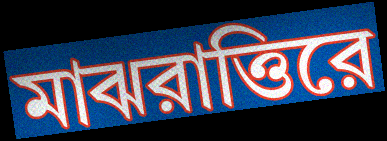
মাঝরাত্তিরে